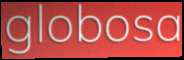
globosa